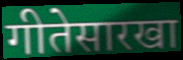
गीतेसारखा